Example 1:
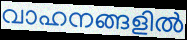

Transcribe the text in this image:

വാഹനങ്ങളിൽ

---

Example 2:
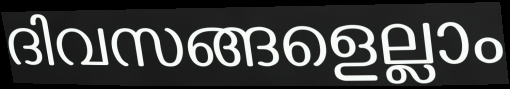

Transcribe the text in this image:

ദിവസങ്ങളെല്ലാം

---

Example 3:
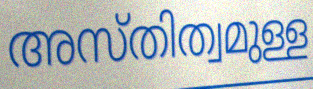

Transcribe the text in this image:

അസ്തിത്വമുള്ള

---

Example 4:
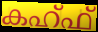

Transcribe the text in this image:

കഹ്ഫ്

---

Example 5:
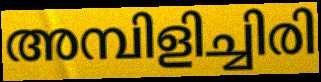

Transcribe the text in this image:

അമ്പിളിച്ചിരി